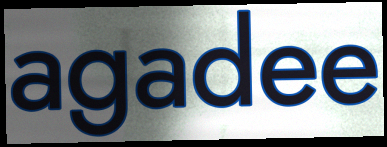
agadee